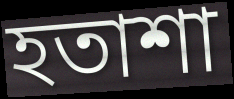
হতাশা